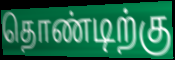
தொண்டிற்கு